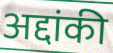
अद्दांकी